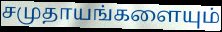
சமுதாயங்களையும்